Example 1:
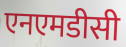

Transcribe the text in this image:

एनएमडीसी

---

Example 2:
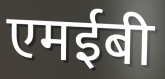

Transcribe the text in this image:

एमईबी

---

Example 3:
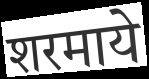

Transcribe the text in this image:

शरमाये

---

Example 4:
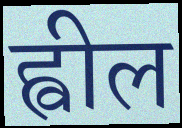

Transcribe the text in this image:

ह्वील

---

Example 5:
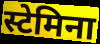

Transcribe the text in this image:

स्टेमिना